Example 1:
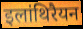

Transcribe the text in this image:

इलांथिरैयन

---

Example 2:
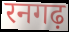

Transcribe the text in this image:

रनगढ़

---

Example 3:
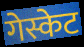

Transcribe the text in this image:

गेस्केट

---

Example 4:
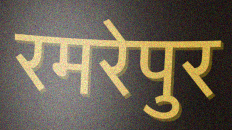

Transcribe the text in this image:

रमरेपुर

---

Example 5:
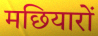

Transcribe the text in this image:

मछियारों